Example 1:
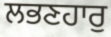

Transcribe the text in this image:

ਲਭਣਹਾਰੁ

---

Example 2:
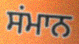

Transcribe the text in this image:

ਸਂਮਾਨ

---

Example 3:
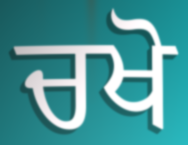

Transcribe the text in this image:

ਚਖੋ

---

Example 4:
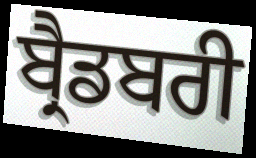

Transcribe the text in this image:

ਬ੍ਰੈਡਬਰੀ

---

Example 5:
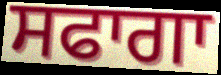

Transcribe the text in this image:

ਸਫਾਗਾ